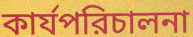
কার্যপরিচালনা